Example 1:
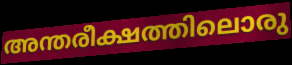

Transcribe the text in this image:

അന്തരീക്ഷത്തിലൊരു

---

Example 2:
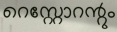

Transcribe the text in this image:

റെസ്റ്റോറന്റും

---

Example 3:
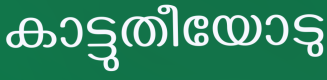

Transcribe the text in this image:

കാട്ടുതീയോടു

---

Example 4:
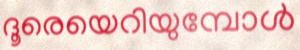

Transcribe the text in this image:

ദൂരെയെറിയുമ്പോൾ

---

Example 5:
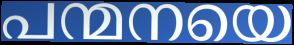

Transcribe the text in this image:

പന്മനയെ